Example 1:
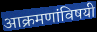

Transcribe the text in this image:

आक्रमणांविषयी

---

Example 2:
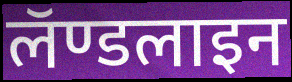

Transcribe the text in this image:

लॅण्डलाइन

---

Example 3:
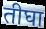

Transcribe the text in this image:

तीघा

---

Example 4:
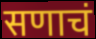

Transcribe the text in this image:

सणाचं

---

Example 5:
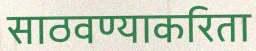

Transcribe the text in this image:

साठवण्याकरिता